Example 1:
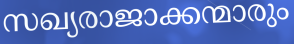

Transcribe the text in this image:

സഖ്യരാജാക്കന്മാരും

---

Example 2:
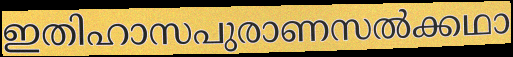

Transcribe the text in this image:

ഇതിഹാസപുരാണസൽക്കഥാ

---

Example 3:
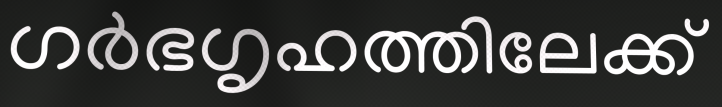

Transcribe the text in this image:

ഗർഭഗൃഹത്തിലേക്ക്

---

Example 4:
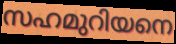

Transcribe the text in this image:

സഹമുറിയനെ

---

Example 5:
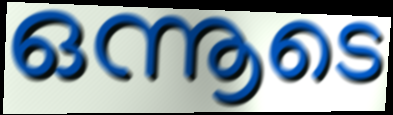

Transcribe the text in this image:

ഒന്നൂടെ